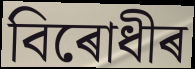
বিৰোধীৰ